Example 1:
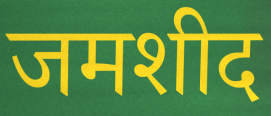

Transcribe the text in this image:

जमशीद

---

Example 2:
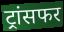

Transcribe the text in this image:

ट्रांसफर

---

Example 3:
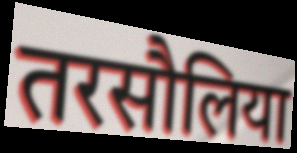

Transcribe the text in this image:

तरसौलिया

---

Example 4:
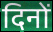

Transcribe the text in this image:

दिनों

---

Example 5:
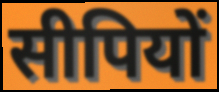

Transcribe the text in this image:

सीपियों